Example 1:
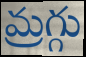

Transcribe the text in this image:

మ్రగ్గు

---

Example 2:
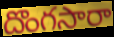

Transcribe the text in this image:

దొంగసారా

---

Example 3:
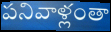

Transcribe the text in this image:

పనివాళ్లంతా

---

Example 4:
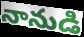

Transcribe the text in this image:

నానుడి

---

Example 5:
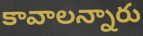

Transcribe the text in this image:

కావాలన్నారు